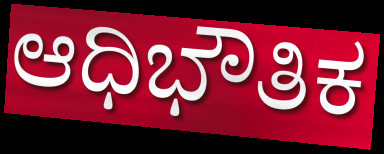
ಆಧಿಭೌತಿಕ